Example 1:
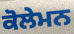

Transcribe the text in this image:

ਕੋਲੇਮਨ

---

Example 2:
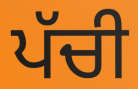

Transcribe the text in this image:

ਪੱਚੀ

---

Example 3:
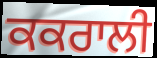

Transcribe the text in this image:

ਕਕਰਾਲੀ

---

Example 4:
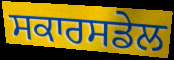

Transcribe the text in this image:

ਸਕਾਰਸਡੇਲ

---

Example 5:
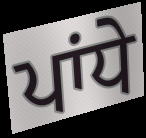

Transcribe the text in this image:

ਪਾਂਧੇ